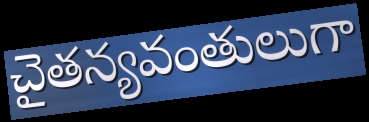
చైతన్యవంతులుగా